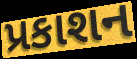
પ્રકાશન